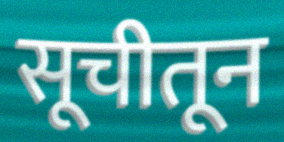
सूचीतून